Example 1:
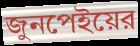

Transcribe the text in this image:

জুনপেইয়ের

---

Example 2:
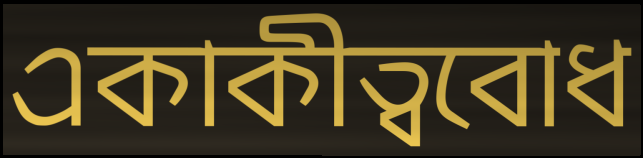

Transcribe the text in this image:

একাকীত্ববোধ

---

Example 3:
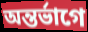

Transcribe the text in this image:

অন্তর্ভাগে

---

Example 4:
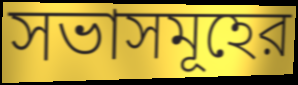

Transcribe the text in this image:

সভাসমূহের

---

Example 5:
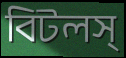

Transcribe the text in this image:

বিটলস্